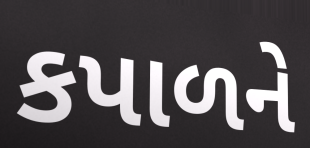
કપાળને